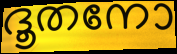
ദൂതനോ